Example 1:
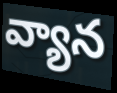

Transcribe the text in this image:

వ్యాన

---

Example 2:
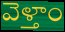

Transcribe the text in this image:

వెళ్తాం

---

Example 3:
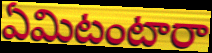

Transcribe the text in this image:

ఏమిటంటారా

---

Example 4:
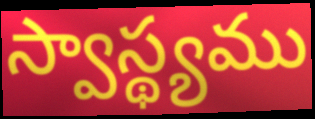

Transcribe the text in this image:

స్వాస్థ్యము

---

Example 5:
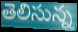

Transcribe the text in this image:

తెలిసున్న